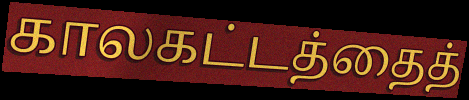
காலகட்டத்தைத்